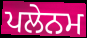
ਪਲੇਨਮ